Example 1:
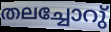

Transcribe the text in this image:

തലച്ചോറു്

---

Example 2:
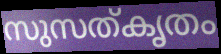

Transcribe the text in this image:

സുസത്കൃതം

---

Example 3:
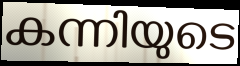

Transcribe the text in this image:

കന്നിയുടെ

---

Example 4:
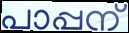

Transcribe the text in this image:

പാപ്പന്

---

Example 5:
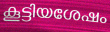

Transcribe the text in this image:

കൂട്ടിയശേഷം